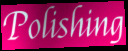
Polishing